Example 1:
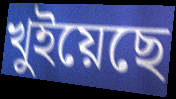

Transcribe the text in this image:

খুইয়েছে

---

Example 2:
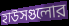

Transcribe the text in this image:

হাউসগুলোর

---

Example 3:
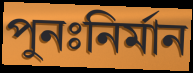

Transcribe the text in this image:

পুনঃনির্মান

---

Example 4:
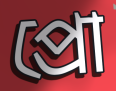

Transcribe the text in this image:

প্রো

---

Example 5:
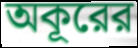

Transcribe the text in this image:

অকূরের